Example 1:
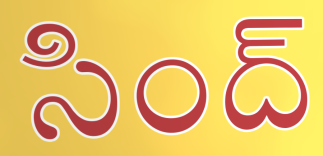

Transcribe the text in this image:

సింద్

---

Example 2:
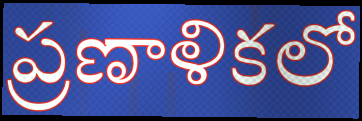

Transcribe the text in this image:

ప్రణాళికలో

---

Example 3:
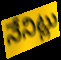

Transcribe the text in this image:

నేనిట్లు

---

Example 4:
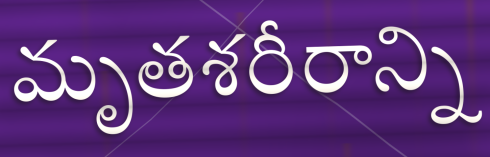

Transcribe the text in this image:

మృతశరీరాన్ని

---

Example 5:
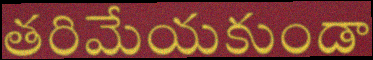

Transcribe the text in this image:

తరిమేయకుండా